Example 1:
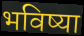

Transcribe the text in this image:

भविष्या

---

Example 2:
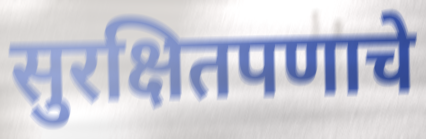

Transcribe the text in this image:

सुरक्षितपणाचे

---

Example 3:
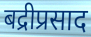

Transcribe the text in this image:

बद्रीप्रसाद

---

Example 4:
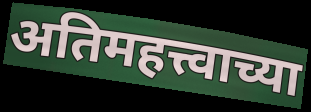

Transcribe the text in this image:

अतिमहत्त्वाच्या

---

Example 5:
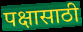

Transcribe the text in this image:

पक्षासाठी